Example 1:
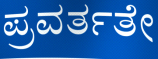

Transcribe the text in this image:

ಪ್ರವರ್ತತೇ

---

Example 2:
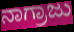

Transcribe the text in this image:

ನಾಗ್ರಾಜು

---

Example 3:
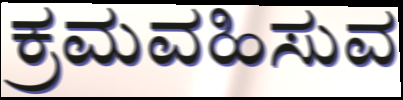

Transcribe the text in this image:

ಕ್ರಮವಹಿಸುವ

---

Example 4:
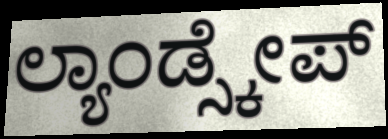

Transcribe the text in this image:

ಲ್ಯಾಂಡ್ಸ್ಕೇಪ್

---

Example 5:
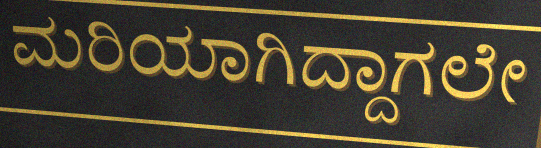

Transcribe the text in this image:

ಮರಿಯಾಗಿದ್ದಾಗಲೇ